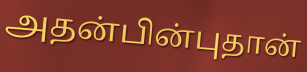
அதன்பின்புதான்